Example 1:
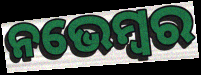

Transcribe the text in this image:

ନଭେମ୍ବର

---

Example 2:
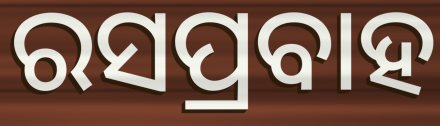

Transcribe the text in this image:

ରସପ୍ରବାହ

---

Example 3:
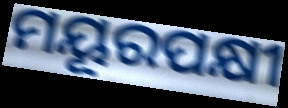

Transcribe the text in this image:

ମୟୂରପକ୍ଷୀ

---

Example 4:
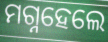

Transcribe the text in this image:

ମଗ୍ନହେଲେ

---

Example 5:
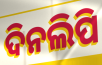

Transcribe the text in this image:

ଦିନଲିପି